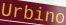
Urbino